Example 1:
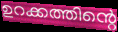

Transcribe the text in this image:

ഉറക്കത്തിന്റെ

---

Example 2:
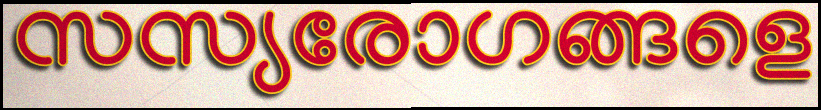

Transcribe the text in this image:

സസ്യരോഗങ്ങളെ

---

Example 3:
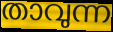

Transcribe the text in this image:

താവുന്ന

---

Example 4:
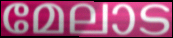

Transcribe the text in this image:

മേലാട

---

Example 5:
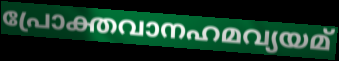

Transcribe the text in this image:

പ്രോക്തവാനഹമവ്യയമ്